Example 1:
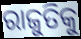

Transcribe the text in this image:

ରାଜୁତିକୁ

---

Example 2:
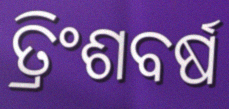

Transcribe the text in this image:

ତ୍ରିଂଶବର୍ଷ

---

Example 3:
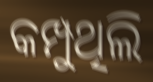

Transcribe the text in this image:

କମ୍ପୁଥିଲି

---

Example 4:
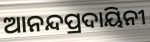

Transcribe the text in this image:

ଆନନ୍ଦପ୍ରଦାୟିନୀ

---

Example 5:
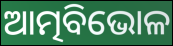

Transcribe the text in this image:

ଆତ୍ମବିଭୋଳ